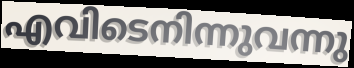
എവിടെനിന്നുവന്നു